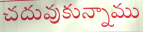
చదువుకున్నాము